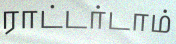
ராட்டர்டாம்